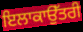
ਇਲਾਕਾਉੱਤਰੀ